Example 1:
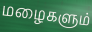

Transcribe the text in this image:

மழைகளும்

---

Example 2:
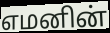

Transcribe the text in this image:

எமனின்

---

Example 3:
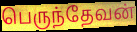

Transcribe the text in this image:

பெருந்தேவன்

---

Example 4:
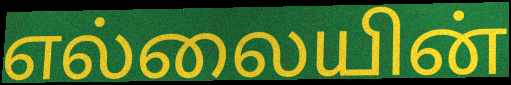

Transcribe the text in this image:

எல்லையின்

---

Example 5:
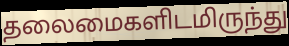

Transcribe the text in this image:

தலைமைகளிடமிருந்து